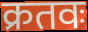
क्रतवः